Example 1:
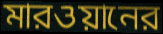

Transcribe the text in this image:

মারওয়ানের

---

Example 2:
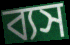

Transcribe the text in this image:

ব্যস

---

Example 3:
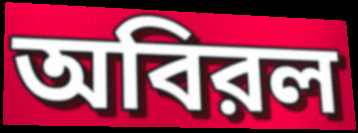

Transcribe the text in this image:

অবিরল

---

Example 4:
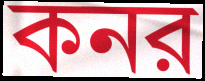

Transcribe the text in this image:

কনর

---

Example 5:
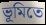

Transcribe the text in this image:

ভূমিতে